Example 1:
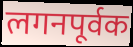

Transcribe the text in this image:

लगनपूर्वक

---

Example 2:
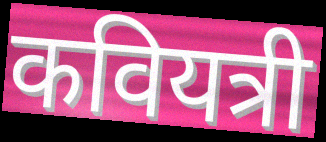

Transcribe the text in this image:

कवियत्री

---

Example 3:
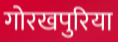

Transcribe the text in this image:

गोरखपुरिया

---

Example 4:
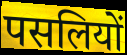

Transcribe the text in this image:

पसलियों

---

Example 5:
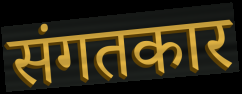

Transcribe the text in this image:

संगतकार